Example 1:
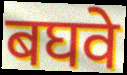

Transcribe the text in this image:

बघवे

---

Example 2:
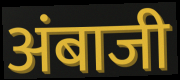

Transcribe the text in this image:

अंबाजी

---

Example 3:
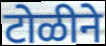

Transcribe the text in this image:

टोळीने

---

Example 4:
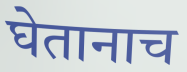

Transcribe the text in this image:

घेतानाच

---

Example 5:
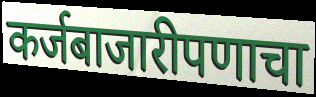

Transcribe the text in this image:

कर्जबाजारीपणाचा